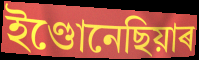
ইণ্ডোনেছিয়াৰ